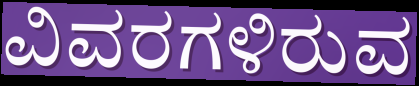
ವಿವರಗಳಿರುವ